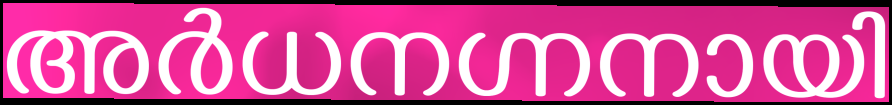
അർധനഗ്നനായി